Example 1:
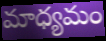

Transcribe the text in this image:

మాధ్యమం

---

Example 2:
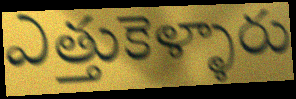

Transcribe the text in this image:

ఎత్తుకెళ్ళారు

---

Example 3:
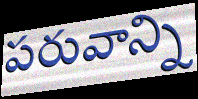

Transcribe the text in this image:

పరువాన్ని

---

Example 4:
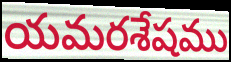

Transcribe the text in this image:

యమరశేషము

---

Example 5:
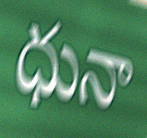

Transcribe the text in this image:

ధునా